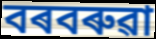
বৰবৰুৱা